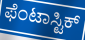
ಫೆಂಟಾಸ್ಟಿಕ್